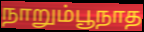
நாறும்பூநாத